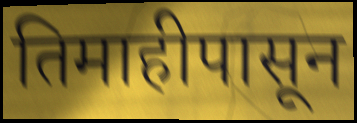
तिमाहीपासून